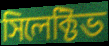
সিলেক্টিভ